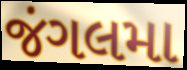
જંગલમા